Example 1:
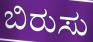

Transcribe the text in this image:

ಬಿರುಸು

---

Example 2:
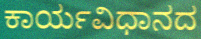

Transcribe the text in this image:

ಕಾರ್ಯವಿಧಾನದ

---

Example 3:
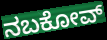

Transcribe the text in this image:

ನಬಕೋವ್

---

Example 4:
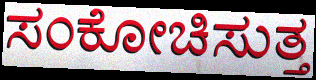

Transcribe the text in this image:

ಸಂಕೋಚಿಸುತ್ತ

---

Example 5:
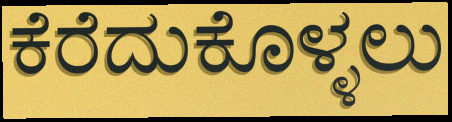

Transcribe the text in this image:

ಕೆರೆದುಕೊಳ್ಳಲು